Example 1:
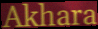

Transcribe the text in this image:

Akhara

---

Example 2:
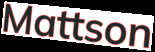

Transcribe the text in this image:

Mattson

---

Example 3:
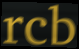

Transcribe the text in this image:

rcb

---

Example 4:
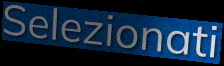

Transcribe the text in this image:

Selezionati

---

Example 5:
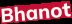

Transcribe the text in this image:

Bhanot